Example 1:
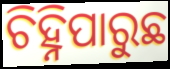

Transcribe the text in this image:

ଚିହ୍ନିପାରୁଛ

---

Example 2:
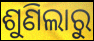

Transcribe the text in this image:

ଶୁଣିଲାରୁ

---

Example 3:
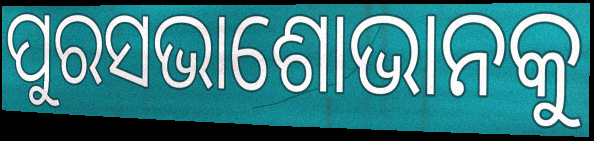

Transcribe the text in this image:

ପୁରସଭାଶୋଭାନକୁ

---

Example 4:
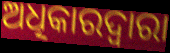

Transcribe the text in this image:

ଅଧିକାରଦ୍ୱାରା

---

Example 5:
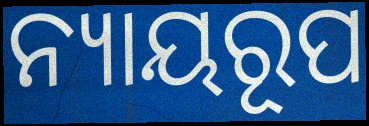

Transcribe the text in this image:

ନ୍ୟାୟରୂପ